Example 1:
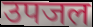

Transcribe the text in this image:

उपजल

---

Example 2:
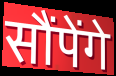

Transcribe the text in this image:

सौंपेंगे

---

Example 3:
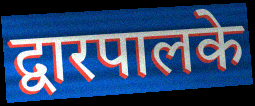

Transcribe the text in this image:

द्वारपालके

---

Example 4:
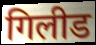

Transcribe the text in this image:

गिलीड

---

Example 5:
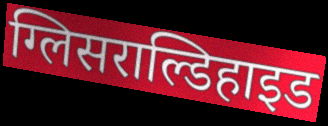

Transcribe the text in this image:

ग्लिसराल्डिहाइड